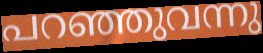
പറഞ്ഞുവന്നു